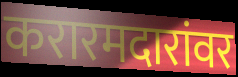
करारमदारांवर